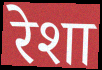
रेशा